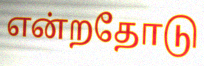
என்றதோடு